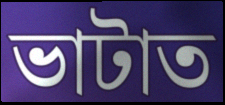
ভাটাত